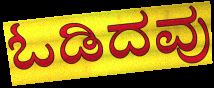
ಓಡಿದವು